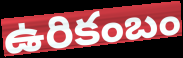
ఉరికంబం